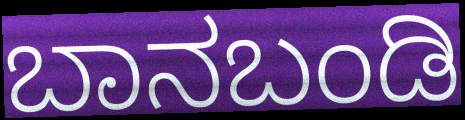
ಬಾನಬಂಡಿ